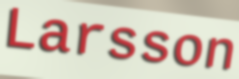
Larsson